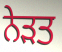
ਨੇੜਤ